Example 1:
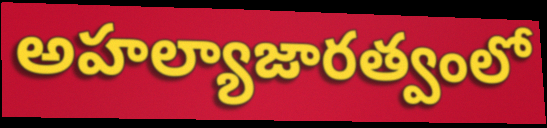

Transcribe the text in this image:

అహల్యాజారత్వంలో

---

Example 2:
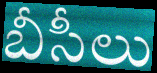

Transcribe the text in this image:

బీసీలు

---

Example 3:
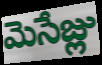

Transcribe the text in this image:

మెసేజ్లు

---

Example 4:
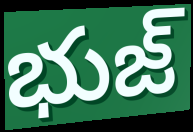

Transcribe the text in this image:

భుజ్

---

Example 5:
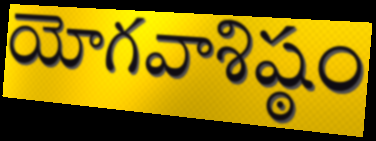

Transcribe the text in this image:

యోగవాశిష్ఠం